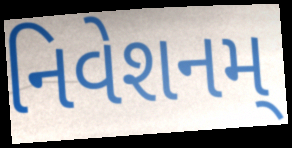
નિવેશનમ્